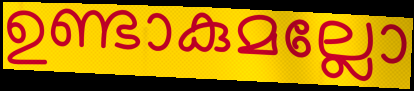
ഉണ്ടാകുമല്ലോ